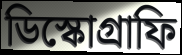
ডিস্কোগ্রাফি